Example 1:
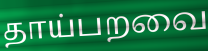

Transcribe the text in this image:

தாய்பறவை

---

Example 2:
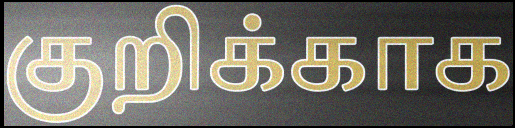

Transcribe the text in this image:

குறிக்காக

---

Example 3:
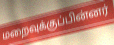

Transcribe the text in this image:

மறைவுக்குப்பின்னர்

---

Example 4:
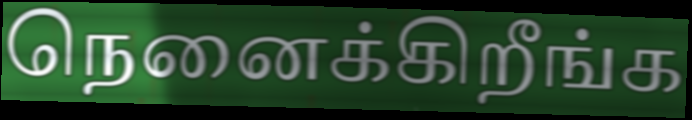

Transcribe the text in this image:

நெனைக்கிறீங்க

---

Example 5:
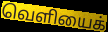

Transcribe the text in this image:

வெளியைக்